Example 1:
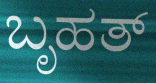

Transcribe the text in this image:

ಬೃಹತ್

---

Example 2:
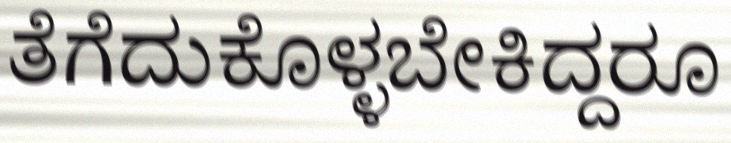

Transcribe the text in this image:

ತೆಗೆದುಕೊಳ್ಳಬೇಕಿದ್ದರೂ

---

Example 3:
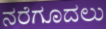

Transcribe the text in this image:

ನರೆಗೂದಲು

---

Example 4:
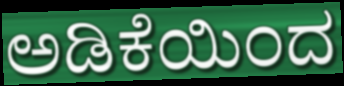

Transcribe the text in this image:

ಅಡಿಕೆಯಿಂದ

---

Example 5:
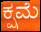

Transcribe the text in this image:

ಕ್ಷಮೆ